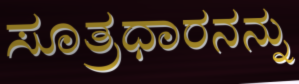
ಸೂತ್ರಧಾರನನ್ನು